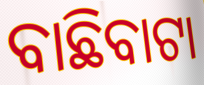
ବାଛିବାଟା